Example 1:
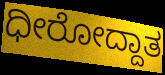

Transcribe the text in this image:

ಧೀರೋದ್ದಾತ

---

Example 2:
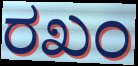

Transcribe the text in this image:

ರಖಂ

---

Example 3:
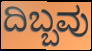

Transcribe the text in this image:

ದಿಬ್ಬವು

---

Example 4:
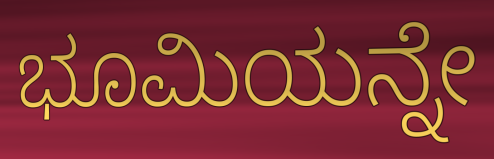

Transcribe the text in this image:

ಭೂಮಿಯನ್ನೇ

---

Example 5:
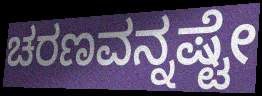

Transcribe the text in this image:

ಚರಣವನ್ನಷ್ಟೇ